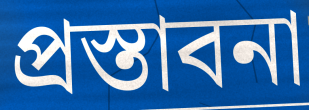
প্রস্তাবনা